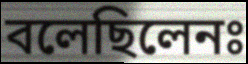
বলেছিলেনঃ